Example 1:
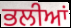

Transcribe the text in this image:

ਭਲੀਆਂ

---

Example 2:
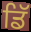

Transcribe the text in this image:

ਡਿੱ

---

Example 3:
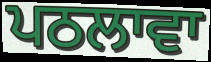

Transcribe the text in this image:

ਪਠਲਾਵਾ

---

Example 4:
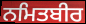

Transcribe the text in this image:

ਨਮਿਤਬੀਰ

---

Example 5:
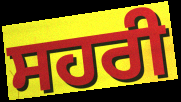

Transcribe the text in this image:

ਸਹਰੀ